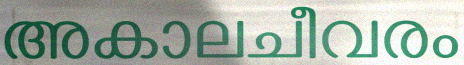
അകാലചീവരം